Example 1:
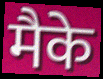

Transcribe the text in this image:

मैके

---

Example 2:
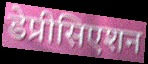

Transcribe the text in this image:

डेप्रीसिएशन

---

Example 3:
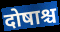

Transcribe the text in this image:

दोषाश्च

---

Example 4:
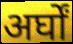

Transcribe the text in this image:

अर्घों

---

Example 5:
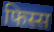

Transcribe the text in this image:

फिस्स